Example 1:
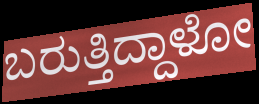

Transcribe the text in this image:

ಬರುತ್ತಿದ್ದಾಳೋ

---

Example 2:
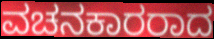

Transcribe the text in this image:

ವಚನಕಾರರಾದ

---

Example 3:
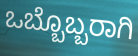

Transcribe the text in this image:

ಒಬ್ಬೊಬ್ಬರಾಗಿ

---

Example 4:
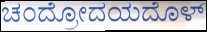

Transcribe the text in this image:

ಚಂದ್ರೋದಯದೊಳ್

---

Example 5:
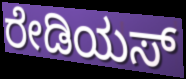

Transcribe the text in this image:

ರೇಡಿಯಸ್